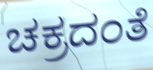
ಚಕ್ರದಂತೆ